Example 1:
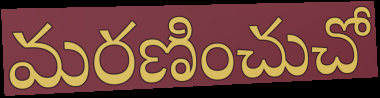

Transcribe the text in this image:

మరణించుచో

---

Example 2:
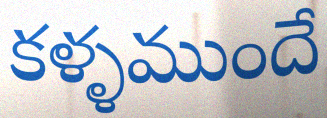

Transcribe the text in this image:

కళ్ళముందే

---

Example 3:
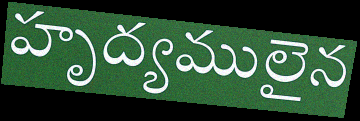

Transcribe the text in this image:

హృద్యములైన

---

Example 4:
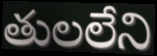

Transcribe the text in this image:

తులలేని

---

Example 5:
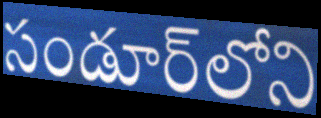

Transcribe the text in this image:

సండూర్‌లోని